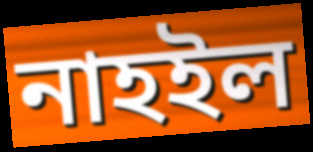
নাহইল